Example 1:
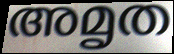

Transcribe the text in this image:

അമൃത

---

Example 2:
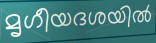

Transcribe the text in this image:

മൃഗീയദശയിൽ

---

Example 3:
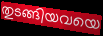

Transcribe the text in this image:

തുടങ്ങിയവയെ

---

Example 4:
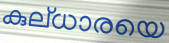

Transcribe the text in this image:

കുല്ധാരയെ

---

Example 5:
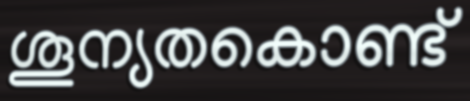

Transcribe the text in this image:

ശൂന്യതകൊണ്ട്